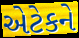
એટેકને